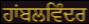
ਹਾਂਬਲਵਿੰਦਰ